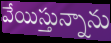
వేయిస్తున్నాను